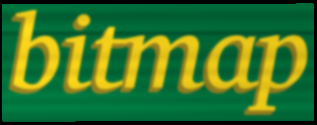
bitmap